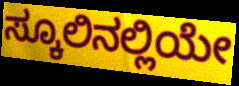
ಸ್ಕೂಲಿನಲ್ಲಿಯೇ